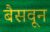
बैसवून